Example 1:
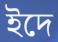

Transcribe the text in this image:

ইদে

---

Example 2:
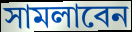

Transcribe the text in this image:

সামলাবেন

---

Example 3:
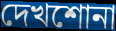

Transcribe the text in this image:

দেখশোনা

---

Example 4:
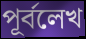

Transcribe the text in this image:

পূর্বলেখ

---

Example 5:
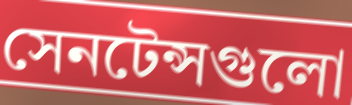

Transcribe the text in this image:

সেনটেন্সগুলো